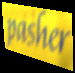
pasher